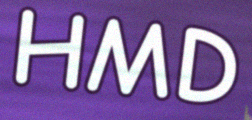
HMD